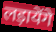
लड़ायेंगे